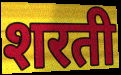
शरती